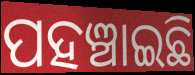
ପହଞ୍ଚାଇଛି